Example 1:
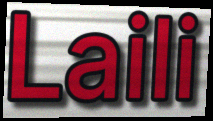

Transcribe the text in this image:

Laili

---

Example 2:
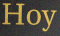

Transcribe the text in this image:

Hoy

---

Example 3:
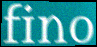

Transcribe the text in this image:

fino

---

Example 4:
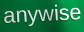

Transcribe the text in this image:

anywise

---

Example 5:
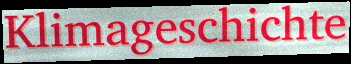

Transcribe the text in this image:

Klimageschichte